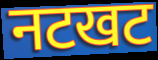
नटखट